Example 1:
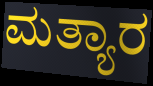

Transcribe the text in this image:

ಮತ್ಯಾರ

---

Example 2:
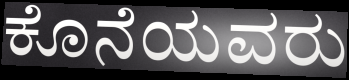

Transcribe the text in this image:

ಕೊನೆಯವರು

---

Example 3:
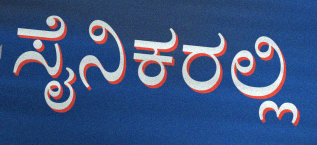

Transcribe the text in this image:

ಸೈನಿಕರಲ್ಲಿ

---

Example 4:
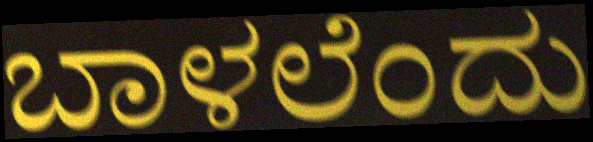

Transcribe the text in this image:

ಬಾಳಲೆಂದು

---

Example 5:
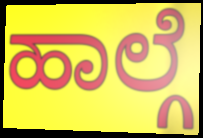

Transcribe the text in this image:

ಹಾಲ್ಗೆ